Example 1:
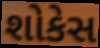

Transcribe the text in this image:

શોકેસ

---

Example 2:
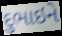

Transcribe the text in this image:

દુભાઇને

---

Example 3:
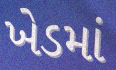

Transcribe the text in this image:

ખેડમાં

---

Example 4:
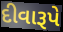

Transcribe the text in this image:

દીવારૂપે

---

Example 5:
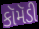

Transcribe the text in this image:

કૉમૅડી